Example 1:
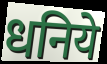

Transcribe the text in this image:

धनिये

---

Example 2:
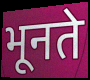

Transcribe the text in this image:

भूनते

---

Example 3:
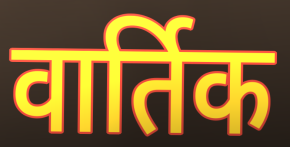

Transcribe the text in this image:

वार्तिक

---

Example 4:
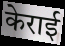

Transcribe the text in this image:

केराई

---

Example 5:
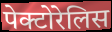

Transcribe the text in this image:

पेक्टोरेलिस